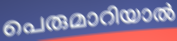
പെരുമാറിയാൽ